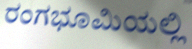
ರಂಗಭೂಮಿಯಲ್ಲಿ